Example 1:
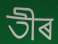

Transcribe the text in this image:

তীৰ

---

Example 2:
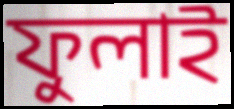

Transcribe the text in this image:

ফুলাই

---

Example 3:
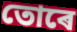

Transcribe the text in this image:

তোৰে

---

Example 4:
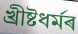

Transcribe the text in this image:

খ্ৰীষ্টধৰ্মৰ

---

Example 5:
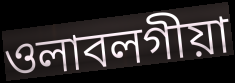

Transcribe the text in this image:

ওলাবলগীয়া